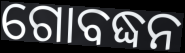
ଗୋବଦ୍ଧନ